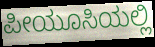
ಪೀಯೂಸಿಯಲ್ಲಿ